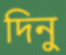
দিনু